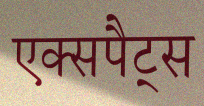
एक्सपैट्स